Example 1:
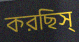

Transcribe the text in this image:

করছিস্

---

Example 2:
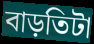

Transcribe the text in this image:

বাড়তিটা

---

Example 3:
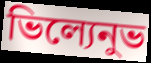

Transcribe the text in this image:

ভিল্যেনুভ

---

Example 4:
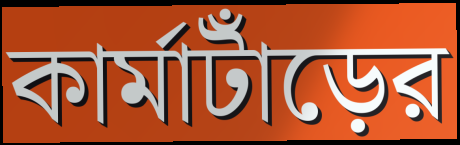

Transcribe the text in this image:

কার্মাটাঁড়ের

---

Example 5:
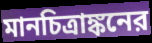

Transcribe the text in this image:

মানচিত্রাঙ্কনের